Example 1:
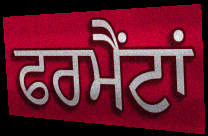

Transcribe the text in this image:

ਫਰਮੈਂਟਾਂ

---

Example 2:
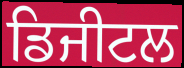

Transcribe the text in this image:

ਡਿਜੀਟਲ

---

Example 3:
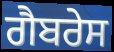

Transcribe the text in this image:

ਗੈਬਰੇਸ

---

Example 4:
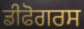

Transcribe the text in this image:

ਡੀਫੋਗਰਸ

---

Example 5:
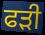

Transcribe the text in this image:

ਫੜੀ